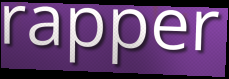
rapper